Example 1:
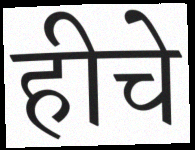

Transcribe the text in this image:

हीचे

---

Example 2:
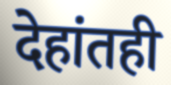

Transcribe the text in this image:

देहांतही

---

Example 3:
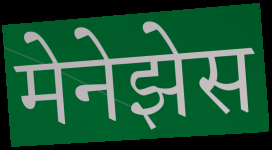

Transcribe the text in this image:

मेनेझेस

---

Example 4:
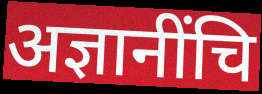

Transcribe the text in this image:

अज्ञानींचि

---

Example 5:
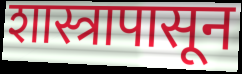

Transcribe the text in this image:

शास्त्रापासून